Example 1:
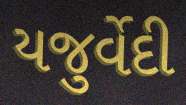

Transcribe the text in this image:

યજુર્વેદી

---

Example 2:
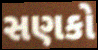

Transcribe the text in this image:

સણકો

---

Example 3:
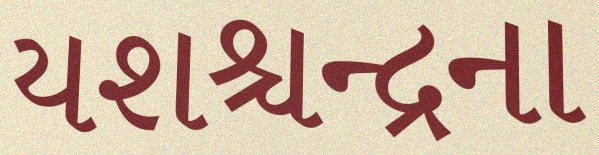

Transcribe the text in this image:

યશશ્ચન્દ્રના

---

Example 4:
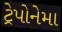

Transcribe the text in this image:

ટ્રેપોનેમા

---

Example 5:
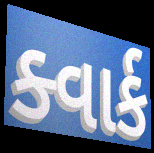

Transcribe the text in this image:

ક્વાર્ક